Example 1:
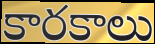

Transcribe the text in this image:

కారకాలు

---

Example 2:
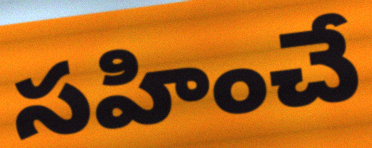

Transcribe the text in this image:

సహించే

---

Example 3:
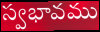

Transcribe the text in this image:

స్వభావము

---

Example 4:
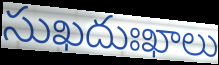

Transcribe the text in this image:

సుఖదుఃఖాలు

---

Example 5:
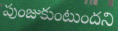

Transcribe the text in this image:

పుంజుకుంటుందని